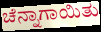
ಚೆನ್ನಾಗಾಯಿತು